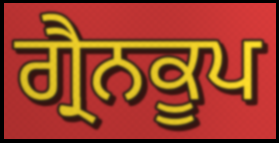
ਗ੍ਰੈਨਕੂਪ